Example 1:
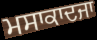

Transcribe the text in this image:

ਮਸਾਕਾਦਜਾ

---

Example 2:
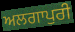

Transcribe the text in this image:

ਅਲਗਾਪੁਰੀ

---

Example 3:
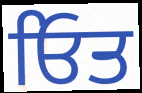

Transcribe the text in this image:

ਓਿਤ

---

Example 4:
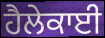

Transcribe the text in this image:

ਹੈਲੇਕਾਈ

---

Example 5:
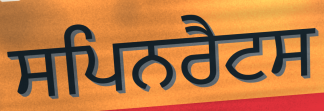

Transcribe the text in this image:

ਸਪਿਨਰੈਟਸ